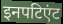
इनपटिएंट